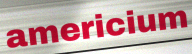
americium